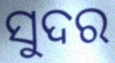
ସୁଦର